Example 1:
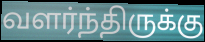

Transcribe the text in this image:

வளர்ந்திருக்கு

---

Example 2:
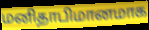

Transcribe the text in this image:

மனிதாபிமானமாக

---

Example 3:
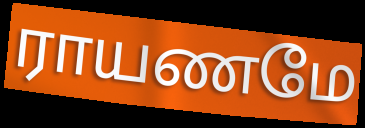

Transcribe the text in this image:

ராயணமே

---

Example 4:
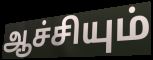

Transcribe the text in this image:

ஆச்சியும்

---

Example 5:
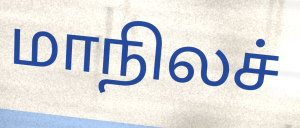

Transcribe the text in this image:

மாநிலச்